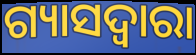
ଗ୍ୟାସଦ୍ଵାରା